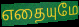
எதையுமே